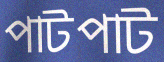
পাটপাট